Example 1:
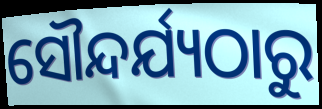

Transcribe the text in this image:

ସୌନ୍ଦର୍ଯ୍ୟଠାରୁ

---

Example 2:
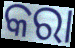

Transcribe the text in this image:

କରା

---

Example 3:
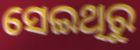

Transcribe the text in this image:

ସେଇଥିରୁ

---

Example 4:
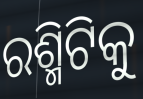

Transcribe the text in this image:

ରଶ୍ମିଟିକୁ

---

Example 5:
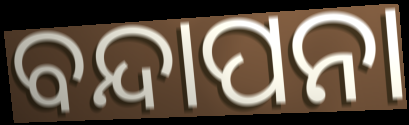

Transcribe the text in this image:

ବନ୍ଦାପନା